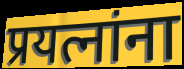
प्रयत्नांना